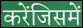
करेंजिसमें